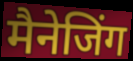
मैनेजिंग